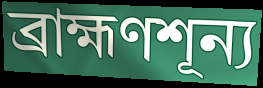
ব্রাহ্মণশূন্য